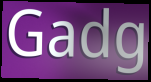
Gadg